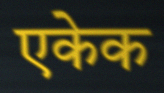
एकेक